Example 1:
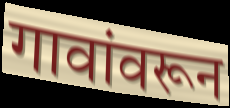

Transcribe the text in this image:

गावांवरून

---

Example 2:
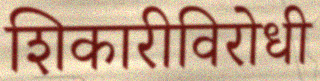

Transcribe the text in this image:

शिकारीविरोधी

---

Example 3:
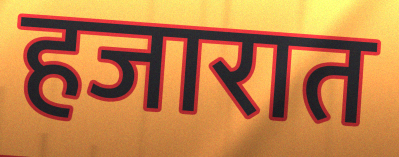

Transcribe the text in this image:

हजारात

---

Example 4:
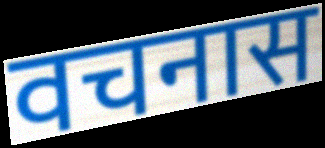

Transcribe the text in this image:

वचनास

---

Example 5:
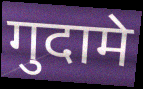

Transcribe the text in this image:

गुदामे